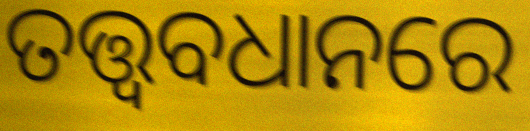
ତତ୍ତ୍ଵବଧାନରେ